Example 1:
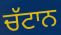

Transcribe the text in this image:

ਚੱਟਾਨ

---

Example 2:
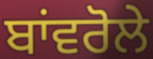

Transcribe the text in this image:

ਬਾਂਵਰੋਲੇ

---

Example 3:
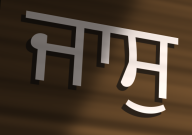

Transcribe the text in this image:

ਜਾਸੁ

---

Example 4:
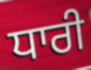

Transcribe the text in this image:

ਧਾਰੀ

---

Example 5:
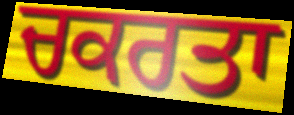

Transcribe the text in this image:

ਚਕਰਤਾ